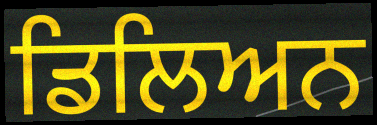
ਡਿਲਿਅਨ